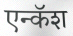
एन्कॅश